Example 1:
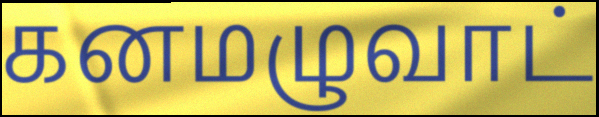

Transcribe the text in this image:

கனமழுவாட்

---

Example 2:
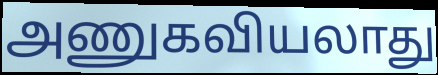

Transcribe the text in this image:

அணுகவியலாது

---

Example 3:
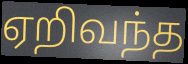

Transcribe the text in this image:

ஏறிவந்த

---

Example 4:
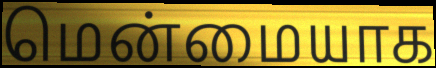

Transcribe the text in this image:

மென்மையாக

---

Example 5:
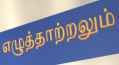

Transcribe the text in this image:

எழுத்தாற்றலும்